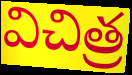
విచిత్ర